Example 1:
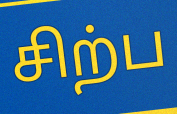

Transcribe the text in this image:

சிற்ப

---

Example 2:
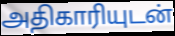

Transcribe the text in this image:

அதிகாரியுடன்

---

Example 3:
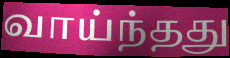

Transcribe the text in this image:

வாய்ந்தது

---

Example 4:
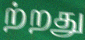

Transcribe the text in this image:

ற்றது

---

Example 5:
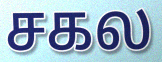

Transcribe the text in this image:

சகல